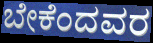
ಬೇಕೆಂದವರ